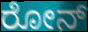
ರೋನ್